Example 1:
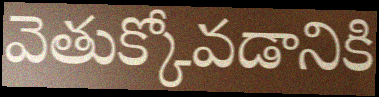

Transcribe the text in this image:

వెతుక్కోవడానికి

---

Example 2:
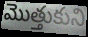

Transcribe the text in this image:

మొత్తుకుని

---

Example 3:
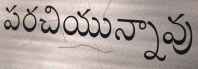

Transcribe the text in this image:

పరచియున్నావు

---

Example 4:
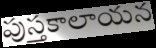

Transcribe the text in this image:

పుస్తకాలాయన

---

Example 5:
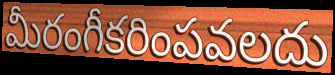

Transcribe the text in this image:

మీరంగీకరింపవలదు